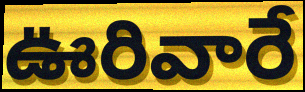
ఊరివారే